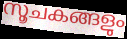
സൂചകങ്ങളും